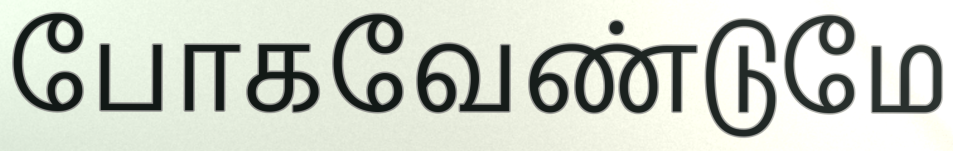
போகவேண்டுமே